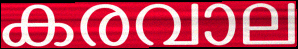
കരവാല